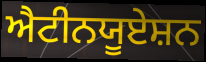
ਐਟੀਨਯੂਏਸ਼ਨ